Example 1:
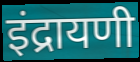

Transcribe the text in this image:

इंद्रायणी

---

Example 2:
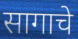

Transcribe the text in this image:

सागाचे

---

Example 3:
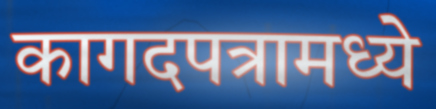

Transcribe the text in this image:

कागदपत्रामध्ये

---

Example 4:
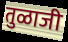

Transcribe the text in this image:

तुळाजी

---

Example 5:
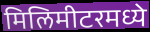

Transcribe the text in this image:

मिलिमीटरमध्ये